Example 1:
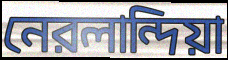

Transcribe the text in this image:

নেরলান্দিয়া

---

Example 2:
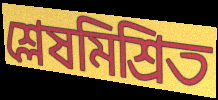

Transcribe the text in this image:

শ্লেষমিশ্রিত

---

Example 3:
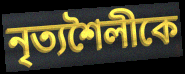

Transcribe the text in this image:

নৃত্যশৈলীকে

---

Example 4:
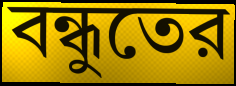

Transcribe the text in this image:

বন্ধুতের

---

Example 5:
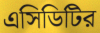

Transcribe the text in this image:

এসিডিটির